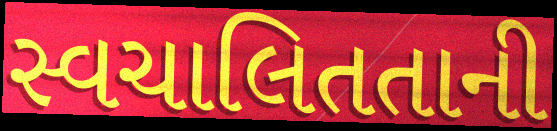
સ્વચાલિતતાની